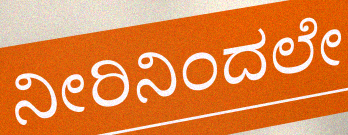
ನೀರಿನಿಂದಲೇ